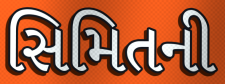
સિમિતની